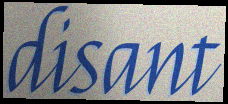
disant